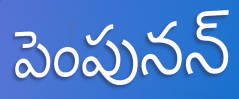
పెంపునన్